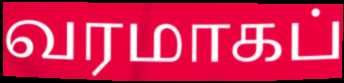
வரமாகப்